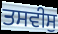
ਤਸਵੀਸੁ